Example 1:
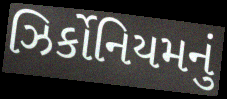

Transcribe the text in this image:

ઝિર્કોનિયમનું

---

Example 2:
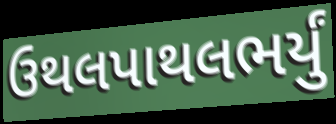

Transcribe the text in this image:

ઉથલપાથલભર્યું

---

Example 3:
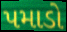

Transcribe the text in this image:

પમાડો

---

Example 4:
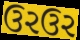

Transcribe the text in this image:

ઉરઉર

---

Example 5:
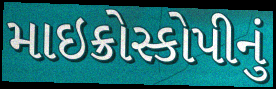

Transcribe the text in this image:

માઇક્રોસ્કોપીનું